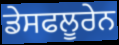
ਡੇਸਫਲੂਰੇਨ